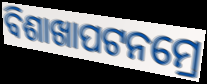
ବିଶାଖାପଟନମ୍ରେ